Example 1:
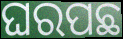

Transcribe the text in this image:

ଘରପଛ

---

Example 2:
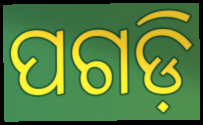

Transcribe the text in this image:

ପଗଡ଼ି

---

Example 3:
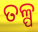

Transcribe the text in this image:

ତଳ୍ପ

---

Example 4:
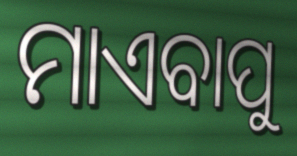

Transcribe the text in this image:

ମାଏବାପୁ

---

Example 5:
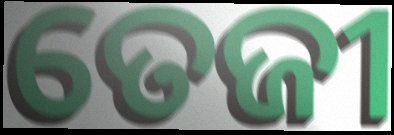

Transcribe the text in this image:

ତେଜୀ